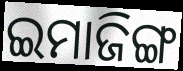
ଇମାଜିଙ୍ଗ